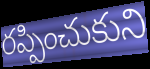
రప్పించుకుని